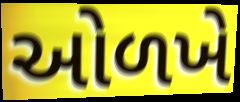
ઓળખે